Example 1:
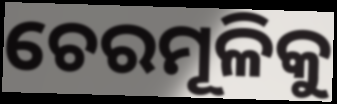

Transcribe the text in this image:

ଚେରମୂଳିକୁ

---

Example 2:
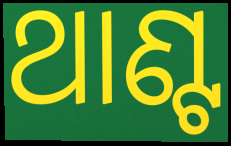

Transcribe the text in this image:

ଥାଣ୍ଟ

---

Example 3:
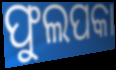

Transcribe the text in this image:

ଫୁଲପକା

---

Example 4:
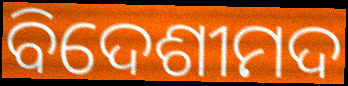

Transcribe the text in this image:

ବିଦେଶୀମଦ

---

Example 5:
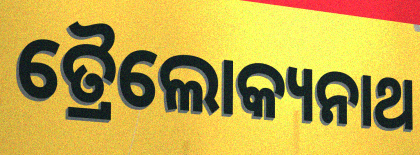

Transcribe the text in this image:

ତ୍ରୈଲୋକ୍ୟନାଥ